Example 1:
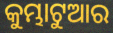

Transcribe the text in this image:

କୁମ୍ଭାଟୁଆର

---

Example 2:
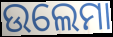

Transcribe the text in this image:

ଉଲେମା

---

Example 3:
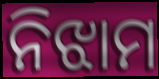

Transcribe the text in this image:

ନିଝାମ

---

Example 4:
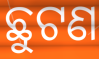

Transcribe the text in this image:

ଛୁଟଣ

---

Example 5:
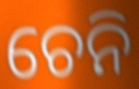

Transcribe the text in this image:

ଚେନି